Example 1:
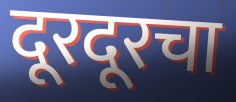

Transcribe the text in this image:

दूरदूरचा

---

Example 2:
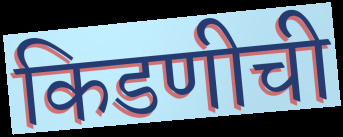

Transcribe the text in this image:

किडणीची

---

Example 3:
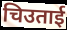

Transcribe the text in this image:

चिउताई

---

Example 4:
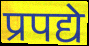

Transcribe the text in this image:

प्रपद्ये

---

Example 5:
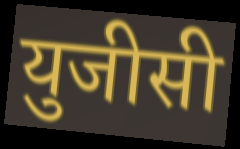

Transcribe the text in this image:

युजीसी